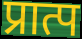
प्रात्प